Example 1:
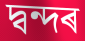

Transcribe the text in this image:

দ্বন্দৰ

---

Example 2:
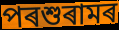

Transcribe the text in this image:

পৰশুৰামৰ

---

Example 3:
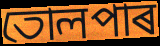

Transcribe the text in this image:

তোলপাৰ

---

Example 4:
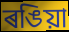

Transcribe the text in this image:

ৰঙিয়া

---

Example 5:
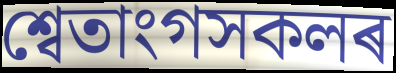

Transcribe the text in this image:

শ্বেতাংগসকলৰ